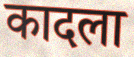
कादला